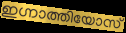
ഇഗ്നാത്തിയോസ്